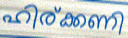
ഹിര്ക്കണി